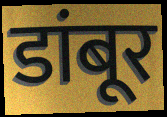
डांबूर